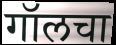
गॉलचा